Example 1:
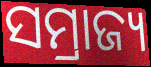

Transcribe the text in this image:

ସମ୍ରାଜ୍ୟ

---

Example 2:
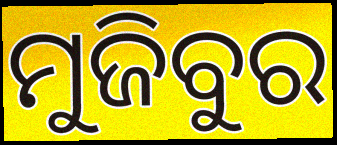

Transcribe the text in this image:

ମୁଜିବୁର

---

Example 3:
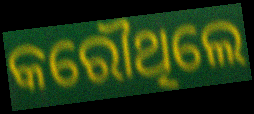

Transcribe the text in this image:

କରୌଥିଲେ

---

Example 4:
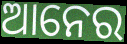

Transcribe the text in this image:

ଆନେର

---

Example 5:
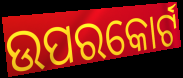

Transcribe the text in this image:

ଉପରକୋର୍ଟ